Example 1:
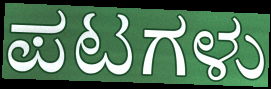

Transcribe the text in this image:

ಪಟಗಳು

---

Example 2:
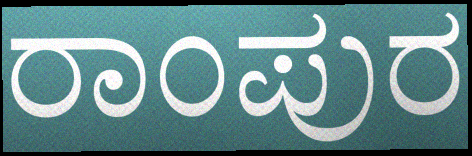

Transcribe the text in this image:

ರಾಂಪುರ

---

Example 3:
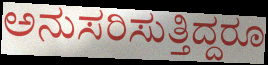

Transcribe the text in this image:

ಅನುಸರಿಸುತ್ತಿದ್ದರೂ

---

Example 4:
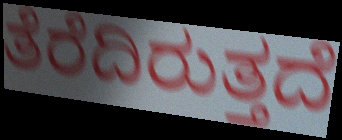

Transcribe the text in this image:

ತೆರೆದಿರುತ್ತದೆ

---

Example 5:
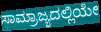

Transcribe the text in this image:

ಸಾಮ್ರಾಜ್ಯದಲ್ಲಿಯೇ